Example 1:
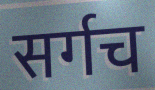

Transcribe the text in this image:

सर्गच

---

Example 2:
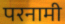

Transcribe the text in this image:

परनामी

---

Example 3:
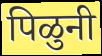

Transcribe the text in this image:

पिळुनी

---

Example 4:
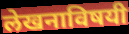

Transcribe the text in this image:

लेखनाविषयी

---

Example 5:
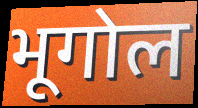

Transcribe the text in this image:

भूगोल